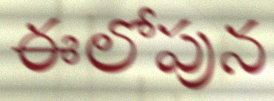
ఈలోపున